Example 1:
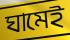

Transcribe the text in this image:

ঘামেই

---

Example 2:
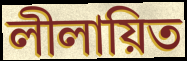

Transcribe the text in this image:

লীলায়িত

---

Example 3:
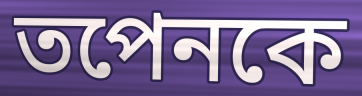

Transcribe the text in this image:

তপেনকে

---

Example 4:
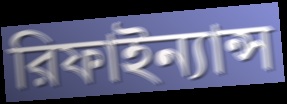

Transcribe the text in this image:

রিফাইন্যান্স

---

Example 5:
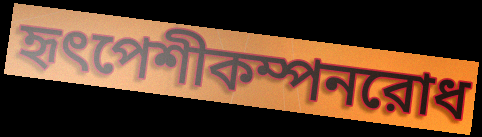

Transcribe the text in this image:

হৃৎপেশীকম্পনরোধ